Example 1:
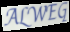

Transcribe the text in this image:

ALWEG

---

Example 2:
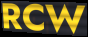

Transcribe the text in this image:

RCW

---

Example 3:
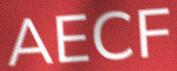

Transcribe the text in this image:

AECF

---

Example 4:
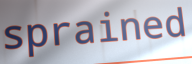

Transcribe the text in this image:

sprained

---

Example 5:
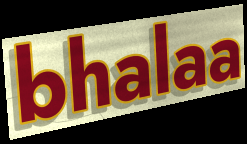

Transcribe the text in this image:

bhalaa